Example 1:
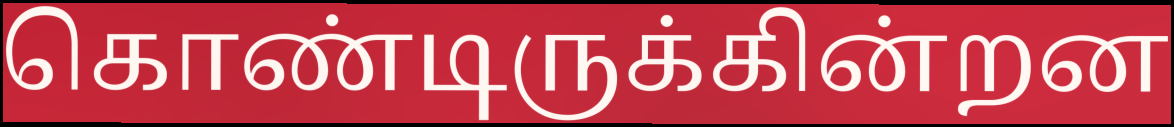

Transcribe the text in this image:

கொண்டிருக்கின்றன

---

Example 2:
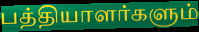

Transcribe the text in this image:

பத்தியாளர்களும்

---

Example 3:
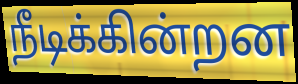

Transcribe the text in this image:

நீடிக்கின்றன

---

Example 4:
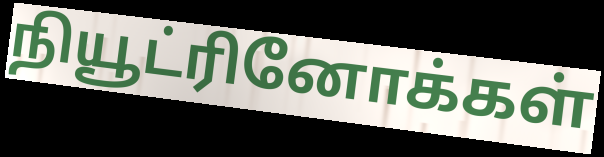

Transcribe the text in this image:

நியூட்ரினோக்கள்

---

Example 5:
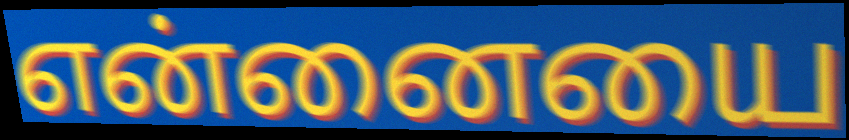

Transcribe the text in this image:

என்னையை